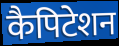
कैपिटेशन